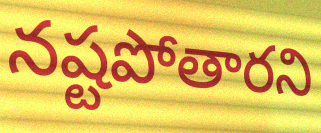
నష్టపోతారని